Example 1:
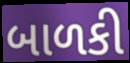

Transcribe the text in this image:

બાળકી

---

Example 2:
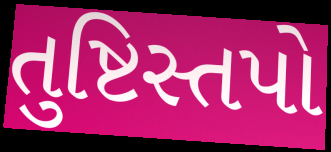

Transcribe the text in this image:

તુષ્ટિસ્તપો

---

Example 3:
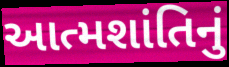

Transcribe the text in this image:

આત્મશાંતિનું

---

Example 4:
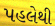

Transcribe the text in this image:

પહલેથી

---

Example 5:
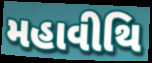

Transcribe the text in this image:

મહાવીથિ